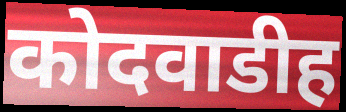
कोदवाडीह